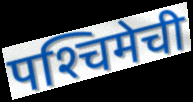
पश्चिमेची